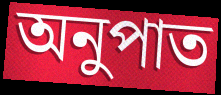
অনুপাত